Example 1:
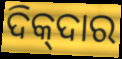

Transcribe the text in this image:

ଦିକ୍‍ଦାର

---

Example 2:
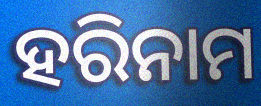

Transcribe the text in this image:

ହରିନାମ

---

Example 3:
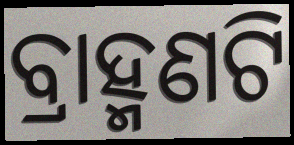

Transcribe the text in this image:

ବ୍ରାହ୍ମଣଟି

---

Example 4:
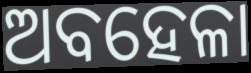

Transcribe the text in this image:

ଅବହେଳା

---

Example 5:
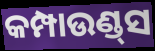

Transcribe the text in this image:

କମ୍ପାଉଣ୍ଡ୍‌ସ